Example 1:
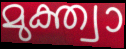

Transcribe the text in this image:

മുക്ത്വാ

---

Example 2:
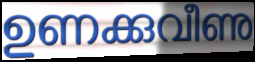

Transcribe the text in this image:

ഉണക്കുവീണു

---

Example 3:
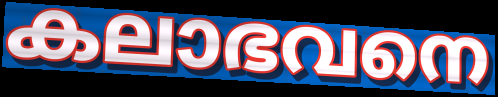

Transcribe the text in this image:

കലാഭവനെ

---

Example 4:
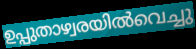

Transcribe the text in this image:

ഉപ്പുതാഴ്വരയിൽവെച്ചു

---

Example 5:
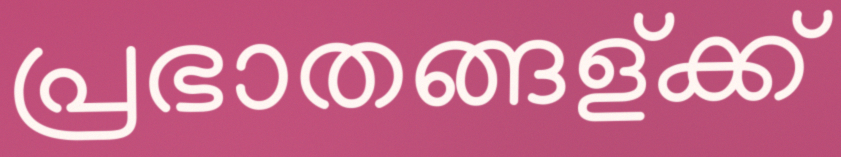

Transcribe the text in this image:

പ്രഭാതങ്ങള്ക്ക്